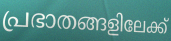
പ്രഭാതങ്ങളിലേക്ക്